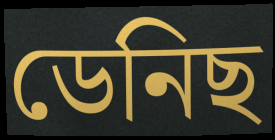
ডেনিছ